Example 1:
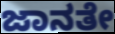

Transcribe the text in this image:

ಜಾನತೇ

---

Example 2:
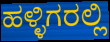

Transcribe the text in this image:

ಹಳ್ಳಿಗರಲ್ಲಿ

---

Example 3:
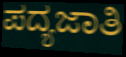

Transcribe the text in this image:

ಪದ್ಯಜಾತಿ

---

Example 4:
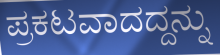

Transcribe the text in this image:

ಪ್ರಕಟವಾದದ್ದನ್ನು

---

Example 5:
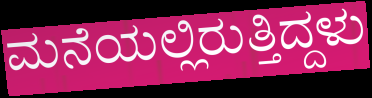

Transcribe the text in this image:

ಮನೆಯಲ್ಲಿರುತ್ತಿದ್ದಳು